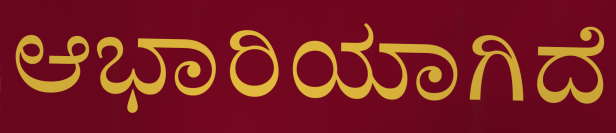
ಆಭಾರಿಯಾಗಿದೆ